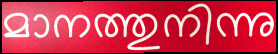
മാനത്തുനിന്നു